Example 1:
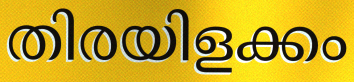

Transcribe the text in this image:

തിരയിളക്കം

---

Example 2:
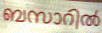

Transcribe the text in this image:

ബസാറിൽ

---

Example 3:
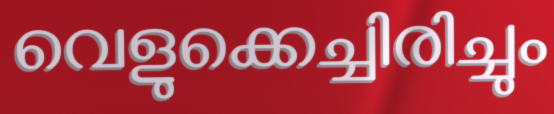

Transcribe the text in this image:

വെളുക്കെച്ചിരിച്ചും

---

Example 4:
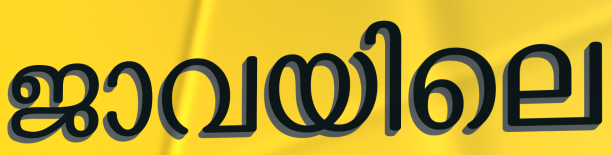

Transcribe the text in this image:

ജാവയിലെ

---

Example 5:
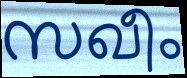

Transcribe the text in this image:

സഖീം